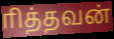
ரித்தவன்